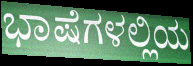
ಭಾಷೆಗಳಲ್ಲಿಯ